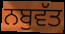
ਨਬੁਵੱਤ